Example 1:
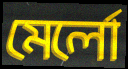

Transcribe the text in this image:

মের্লো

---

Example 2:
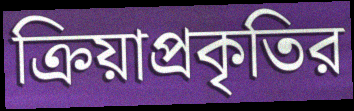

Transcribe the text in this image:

ক্রিয়াপ্রকৃতির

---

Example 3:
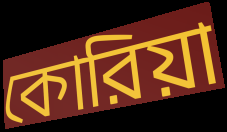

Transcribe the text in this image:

কোরিয়া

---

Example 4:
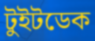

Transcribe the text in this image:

টুইটডেক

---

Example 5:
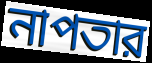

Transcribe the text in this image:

নাপতার